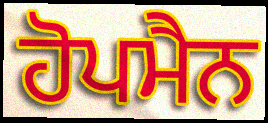
ਹੋਪਮੈਨ